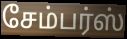
சேம்பர்ஸ்